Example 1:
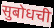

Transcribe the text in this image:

सुबोधची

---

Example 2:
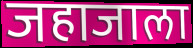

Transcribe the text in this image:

जहाजाला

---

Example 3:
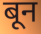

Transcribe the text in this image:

बून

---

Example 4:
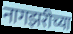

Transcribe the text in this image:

नागझरीच्या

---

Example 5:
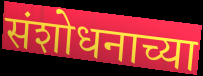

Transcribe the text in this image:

संशोधनाच्या